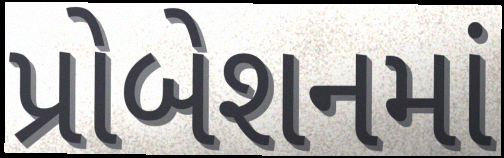
પ્રોબેશનમાં